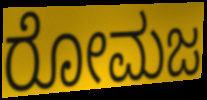
ರೋಮಜ